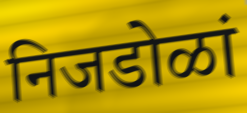
निजडोळां